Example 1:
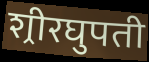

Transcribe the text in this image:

श्रीरघुपती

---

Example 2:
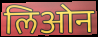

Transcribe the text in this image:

लिओन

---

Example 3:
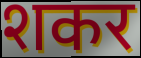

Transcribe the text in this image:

शकर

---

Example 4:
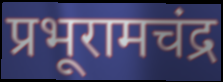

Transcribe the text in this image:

प्रभूरामचंद्र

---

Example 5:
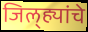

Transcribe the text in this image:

जिल्ह्यांचे